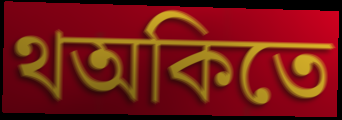
থঅকিতে